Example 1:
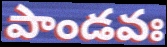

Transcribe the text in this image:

పాండవః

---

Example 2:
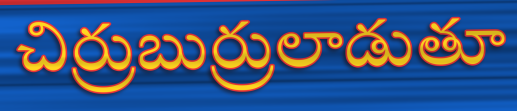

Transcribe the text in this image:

చిర్రుబుర్రులాడుతూ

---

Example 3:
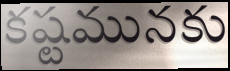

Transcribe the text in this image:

కష్టమునకు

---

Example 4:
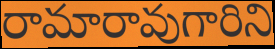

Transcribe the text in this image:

రామారావుగారిని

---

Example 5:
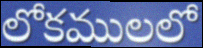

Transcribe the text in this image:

లోకములలో